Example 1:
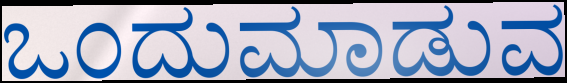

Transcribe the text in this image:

ಒಂದುಮಾಡುವ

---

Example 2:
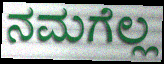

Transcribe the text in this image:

ನಮಗೆಲ್ಲ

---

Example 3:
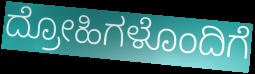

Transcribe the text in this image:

ದ್ರೋಹಿಗಳೊಂದಿಗೆ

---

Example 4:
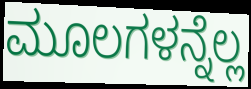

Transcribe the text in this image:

ಮೂಲಗಳನ್ನೆಲ್ಲ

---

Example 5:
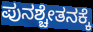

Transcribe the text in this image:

ಪುನಶ್ಚೇತನಕ್ಕೆ